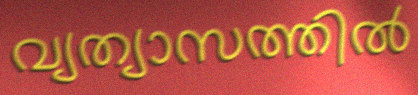
വ്യത്യാസത്തിൽ